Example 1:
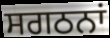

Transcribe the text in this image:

ਸਗਠਨਾਂ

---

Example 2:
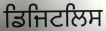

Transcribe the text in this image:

ਡਿਜਿਟਲਿਸ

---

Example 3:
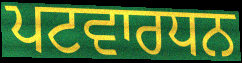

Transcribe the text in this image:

ਪਟਵਾਰਧਨ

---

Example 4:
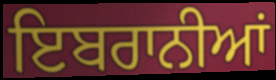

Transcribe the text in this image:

ਇਬਰਾਨੀਆਂ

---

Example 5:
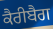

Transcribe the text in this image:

ਕੈਰੀਬੈਗ